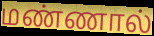
மண்ணால்